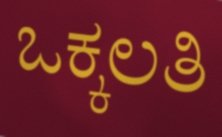
ಒಕ್ಕಲತಿ